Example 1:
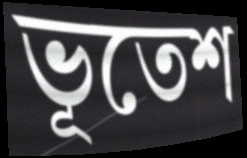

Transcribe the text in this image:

ভূতেশ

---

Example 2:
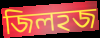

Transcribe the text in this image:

জিলহজ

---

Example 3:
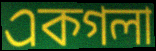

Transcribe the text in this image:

একগলা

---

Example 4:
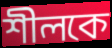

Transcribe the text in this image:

শীলকে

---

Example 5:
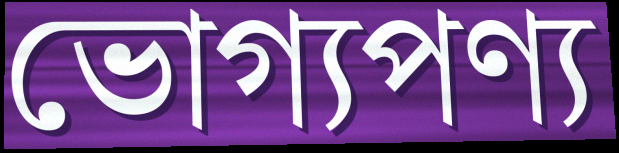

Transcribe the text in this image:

ভোগ্যপণ্য